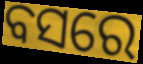
ବସରେ